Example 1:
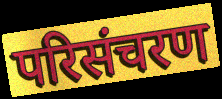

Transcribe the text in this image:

परिसंचरण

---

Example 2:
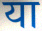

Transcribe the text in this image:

या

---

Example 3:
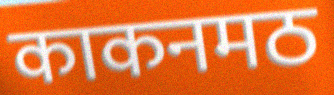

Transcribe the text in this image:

काकनमठ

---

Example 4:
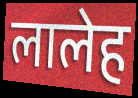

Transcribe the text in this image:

लालेह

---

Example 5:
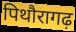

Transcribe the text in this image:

पिथौरागढ़